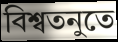
বিশ্বতনুতে